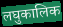
लघुकालिक